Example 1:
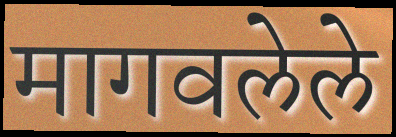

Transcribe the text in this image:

मागवलेले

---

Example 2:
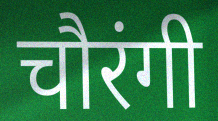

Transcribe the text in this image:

चौरंगी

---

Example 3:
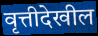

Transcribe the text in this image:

वृत्तीदेखील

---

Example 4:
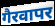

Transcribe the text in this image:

गैरवापर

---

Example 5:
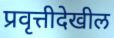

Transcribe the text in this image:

प्रवृत्तीदेखील